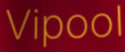
Vipool